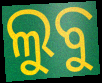
ଲୁବୁ